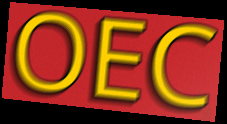
OEC